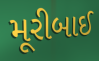
મૂરીબાઈ